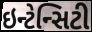
ઇન્ટેન્સિટી